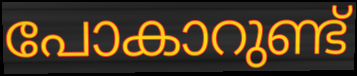
പോകാറുണ്ട്